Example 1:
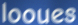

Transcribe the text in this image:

looues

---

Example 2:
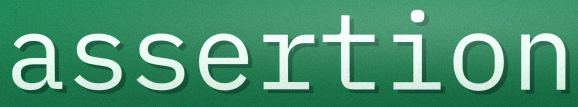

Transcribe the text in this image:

assertion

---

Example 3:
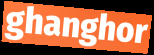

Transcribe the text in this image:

ghanghor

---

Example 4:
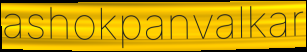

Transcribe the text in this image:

ashokpanvalkar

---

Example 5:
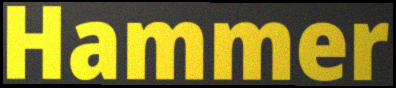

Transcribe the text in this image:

Hammer